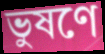
ভুষণে